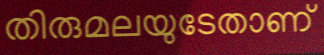
തിരുമലയുടേതാണ്